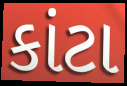
કાંટા